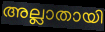
അല്ലാതായി